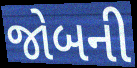
જોબની